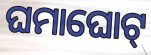
ଘମାଘୋଟ୍